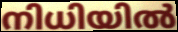
നിധിയിൽ